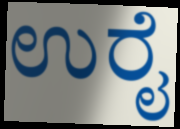
ಉರೈ